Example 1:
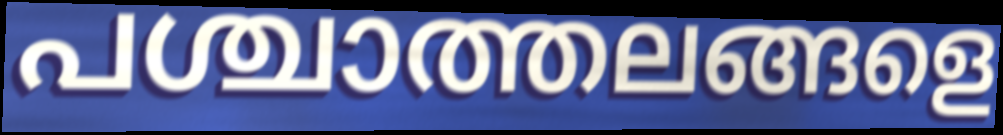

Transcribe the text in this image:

പശ്ചാത്തലങ്ങളെ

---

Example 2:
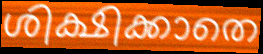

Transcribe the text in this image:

ശിക്ഷിക്കാതെ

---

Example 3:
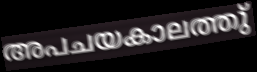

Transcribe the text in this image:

അപചയകാലത്തു്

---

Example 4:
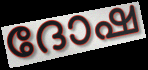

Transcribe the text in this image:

ദോഷ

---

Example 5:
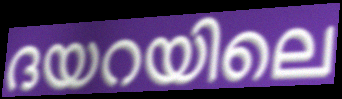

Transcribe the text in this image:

ദയറയിലെ